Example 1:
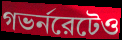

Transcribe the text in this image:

গভর্নরেটেও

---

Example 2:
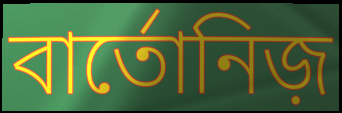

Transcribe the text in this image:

বার্তোনিজ়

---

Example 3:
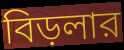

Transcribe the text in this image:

বিড়লার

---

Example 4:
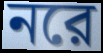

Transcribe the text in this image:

নরে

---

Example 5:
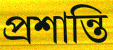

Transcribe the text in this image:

প্রশান্তি